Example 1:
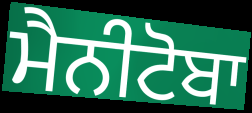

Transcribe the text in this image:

ਮੈਨੀਟੋਬਾ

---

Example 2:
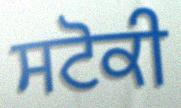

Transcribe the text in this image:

ਸਟੋਕੀ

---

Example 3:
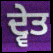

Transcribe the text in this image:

ਦ੍ਵੇਤ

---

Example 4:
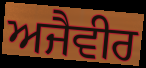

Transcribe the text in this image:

ਅਜੈਵੀਰ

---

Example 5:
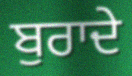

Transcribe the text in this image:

ਬੁਰਾਦੇ